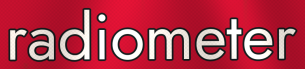
radiometer